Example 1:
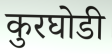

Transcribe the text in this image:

कुरघोडी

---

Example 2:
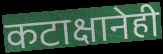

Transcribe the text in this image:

कटाक्षानेही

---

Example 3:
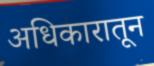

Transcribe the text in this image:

अधिकारातून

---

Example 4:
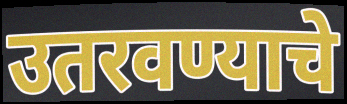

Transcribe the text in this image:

उतरवण्याचे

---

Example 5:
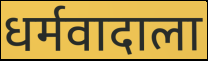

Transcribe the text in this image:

धर्मवादाला